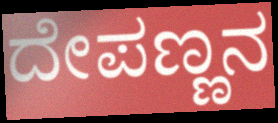
ದೇಪಣ್ಣನ